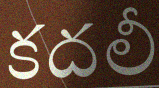
కదలీ